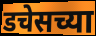
डचेसच्या